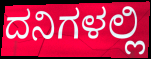
ದನಿಗಳಲ್ಲಿ